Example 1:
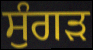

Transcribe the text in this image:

ਸੁੰਗੜ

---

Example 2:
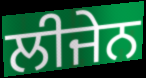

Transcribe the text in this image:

ਲੀਜੇਨ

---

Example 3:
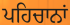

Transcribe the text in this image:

ਪਹਿਚਾਨਾਂ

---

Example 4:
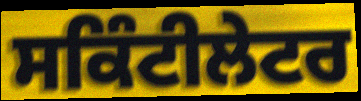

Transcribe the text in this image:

ਸਕਿੰਟੀਲੇਟਰ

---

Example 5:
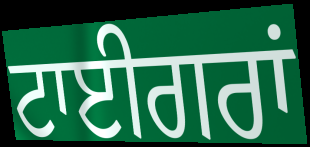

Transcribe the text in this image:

ਟਾਈਗਰਾਂ